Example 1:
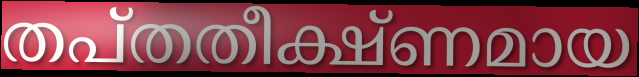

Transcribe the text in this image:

തപ്തതീക്ഷ്ണമായ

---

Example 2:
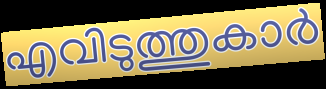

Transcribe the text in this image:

എവിടുത്തുകാർ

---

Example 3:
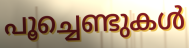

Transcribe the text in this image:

പൂച്ചെണ്ടുകൾ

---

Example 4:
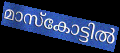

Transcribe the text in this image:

മാസ്കോട്ടിൽ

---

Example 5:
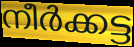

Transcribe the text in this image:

നീർക്കട്ട